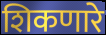
शिकणारे